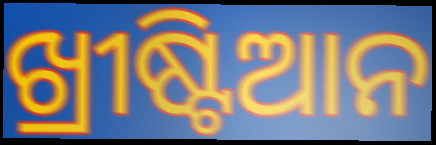
ଖ୍ରୀଷ୍ଟିଆନ